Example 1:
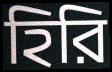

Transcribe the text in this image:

হিরি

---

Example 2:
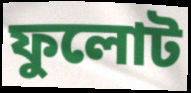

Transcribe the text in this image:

ফুলোট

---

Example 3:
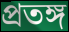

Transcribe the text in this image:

প্রতঙ্গ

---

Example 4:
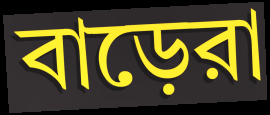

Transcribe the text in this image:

বাড়েরা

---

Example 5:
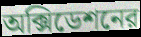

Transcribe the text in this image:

অক্সিডেশনের